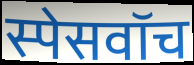
स्पेसवॉच